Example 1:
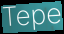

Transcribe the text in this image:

Tepe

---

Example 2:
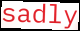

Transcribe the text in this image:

sadly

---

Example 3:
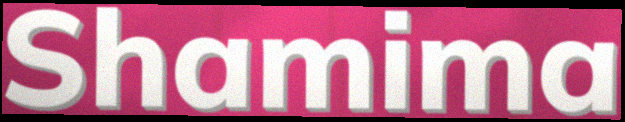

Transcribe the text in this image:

Shamima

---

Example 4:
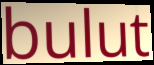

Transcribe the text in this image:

bulut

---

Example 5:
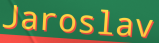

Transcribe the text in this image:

Jaroslav